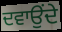
ਦਵਾਉਂਦੇ